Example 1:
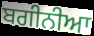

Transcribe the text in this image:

ਬਗੀਨੀਆ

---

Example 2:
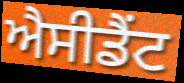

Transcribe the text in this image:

ਐਸੀਡੈਂਟ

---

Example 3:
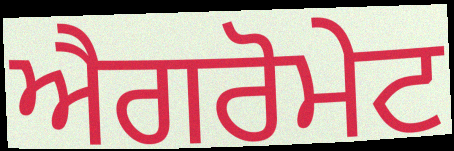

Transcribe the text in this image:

ਐਗਰੋਮੇਟ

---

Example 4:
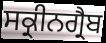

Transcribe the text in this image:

ਸਕ੍ਰੀਨਗ੍ਰੈਬ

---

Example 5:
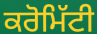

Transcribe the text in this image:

ਕਰੋਮਿੱਟੀ